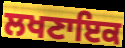
ਲਖਣਾਇਕ